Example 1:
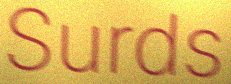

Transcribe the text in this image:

Surds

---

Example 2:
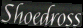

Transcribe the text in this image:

Shoedross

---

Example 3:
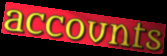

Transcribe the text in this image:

accounts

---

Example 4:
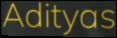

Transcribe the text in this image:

Adityas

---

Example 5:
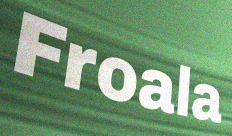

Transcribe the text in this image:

Froala